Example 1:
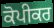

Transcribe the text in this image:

ਕੋਪੀਕਰ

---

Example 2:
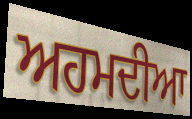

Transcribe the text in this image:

ਅਹਮਦੀਆ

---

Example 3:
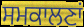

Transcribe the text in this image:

ਸਮਕਾਲਣਾਂ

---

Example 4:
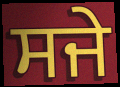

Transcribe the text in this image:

ਸਜੇ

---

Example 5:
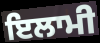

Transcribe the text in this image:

ਇਲਾਮੀ